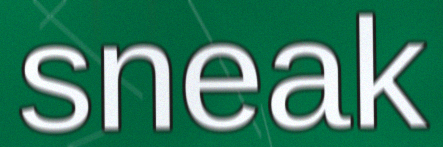
sneak